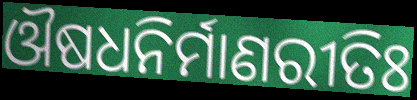
ଔଷଧନିର୍ମାଣରୀତିଃ